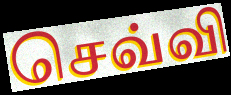
செவ்வி